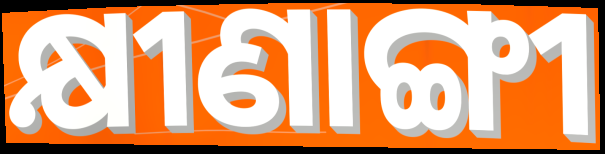
କ୍ଷୀଣାଙ୍ଗୀ